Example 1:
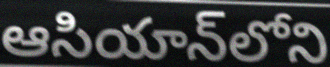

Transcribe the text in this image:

ఆసియాన్‌లోని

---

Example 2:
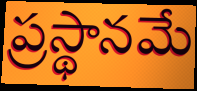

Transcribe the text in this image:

ప్రస్థానమే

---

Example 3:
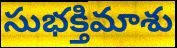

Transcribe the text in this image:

సుభక్తిమాశు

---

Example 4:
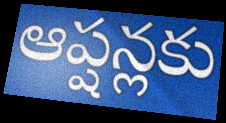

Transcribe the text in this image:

ఆప్షన్లకు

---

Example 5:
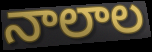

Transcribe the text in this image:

నాలాల